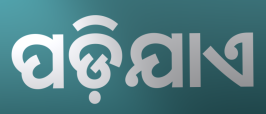
ପଡ଼ିଯାଏ